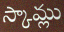
స్కామ్లు